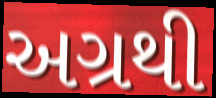
અગ્રથી